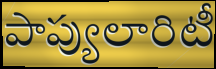
పాప్యులారిటీ